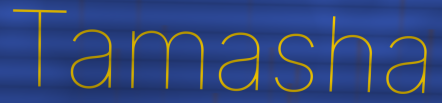
Tamasha